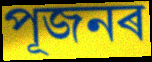
পূজনৰ